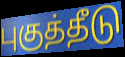
புகுத்தீடு